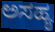
ಅಸಹ್ಯ